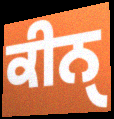
ਕੀਨੑ